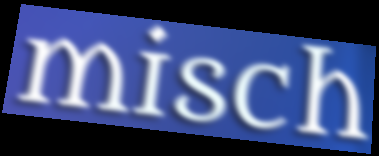
misch